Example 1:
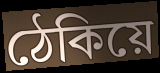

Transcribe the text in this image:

ঠেকিয়ে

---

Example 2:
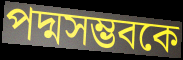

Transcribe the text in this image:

পদ্মসম্ভবকে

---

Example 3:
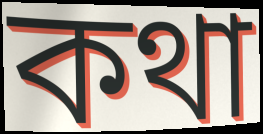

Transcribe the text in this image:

কথা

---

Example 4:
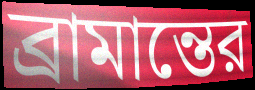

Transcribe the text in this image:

ব্রামান্তের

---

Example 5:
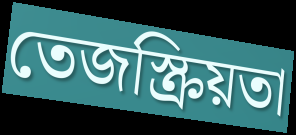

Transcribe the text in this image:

তেজস্ক্রিয়তা